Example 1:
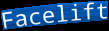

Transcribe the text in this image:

Facelift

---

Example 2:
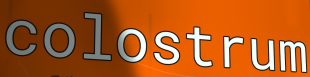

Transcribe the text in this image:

colostrum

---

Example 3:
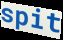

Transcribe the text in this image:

spit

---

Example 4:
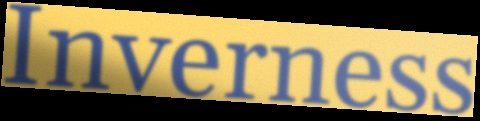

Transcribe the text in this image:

Inverness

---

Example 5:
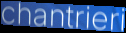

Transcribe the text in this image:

chantrieri